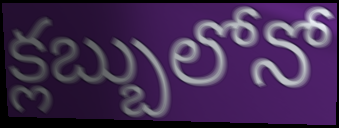
క్లబ్బులోనో